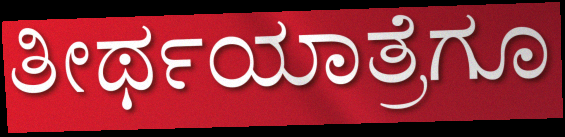
ತೀರ್ಥಯಾತ್ರೆಗೂ